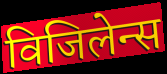
विजिलेन्स